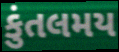
કુંતલમય